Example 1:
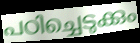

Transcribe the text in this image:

പഠിച്ചെടുക്കും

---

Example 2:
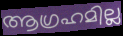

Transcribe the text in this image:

ആഗ്രഹമില്ല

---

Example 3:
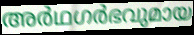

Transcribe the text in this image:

അർഥഗർഭവുമായ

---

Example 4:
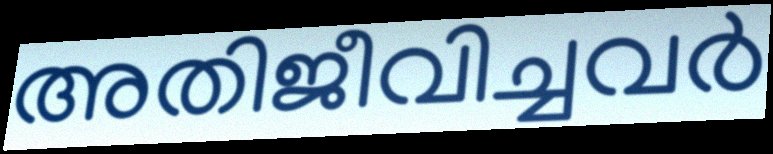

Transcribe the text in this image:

അതിജീവിച്ചവർ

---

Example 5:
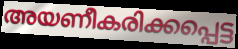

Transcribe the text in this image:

അയണീകരിക്കപ്പെട്ട